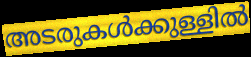
അടരുകൾക്കുള്ളിൽ